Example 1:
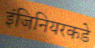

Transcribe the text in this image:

इंजिनियरकडे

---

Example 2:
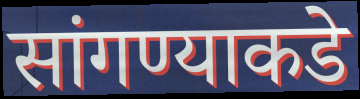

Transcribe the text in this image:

सांगण्याकडे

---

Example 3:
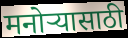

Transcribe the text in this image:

मनोऱ्यासाठी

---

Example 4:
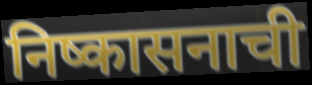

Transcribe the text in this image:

निष्कासनाची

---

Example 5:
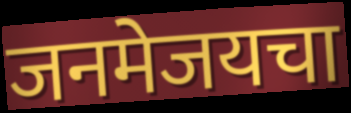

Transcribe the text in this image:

जनमेजयचा